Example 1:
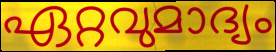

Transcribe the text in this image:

ഏറ്റവുമാദ്യം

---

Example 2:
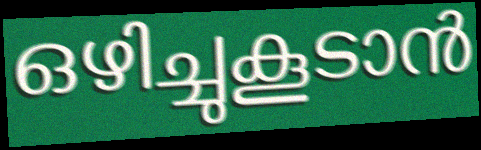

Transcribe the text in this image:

ഒഴിച്ചുകൂടാൻ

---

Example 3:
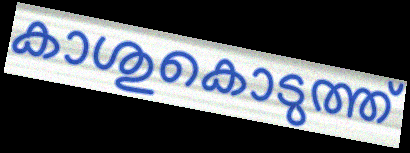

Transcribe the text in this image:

കാശുകൊടുത്ത്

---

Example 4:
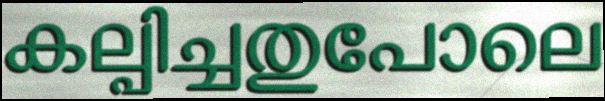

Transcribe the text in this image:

കല്പിച്ചതുപോലെ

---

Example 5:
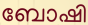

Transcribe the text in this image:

ബോഷി